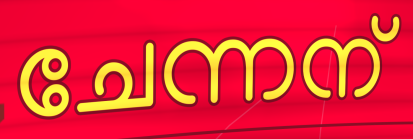
ചേന്നന്